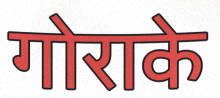
गोराके